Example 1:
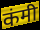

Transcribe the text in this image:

कंमी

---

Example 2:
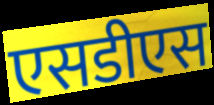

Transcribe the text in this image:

एसडीएस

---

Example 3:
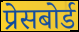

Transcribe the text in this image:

प्रेसबोर्ड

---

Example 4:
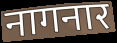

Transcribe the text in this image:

नागनार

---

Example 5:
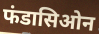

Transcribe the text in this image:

फंडासिओन